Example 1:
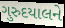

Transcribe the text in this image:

ગુરુદયાલને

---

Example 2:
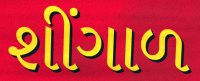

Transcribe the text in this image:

શીંગાળ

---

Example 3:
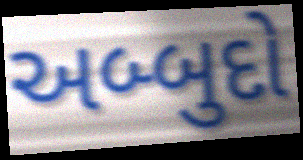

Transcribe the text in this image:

અબ્બુદો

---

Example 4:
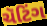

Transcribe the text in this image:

ચૅટિંગ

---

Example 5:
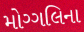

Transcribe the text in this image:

મોગ્ગલિના